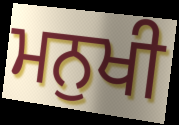
ਮਨੁਖੀ